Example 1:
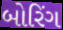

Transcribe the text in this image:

બોરિંગ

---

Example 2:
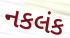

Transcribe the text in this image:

નકલંક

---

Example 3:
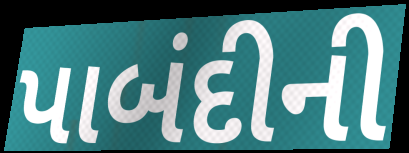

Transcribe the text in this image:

પાબંદીની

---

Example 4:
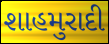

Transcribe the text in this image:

શાહમુરાદી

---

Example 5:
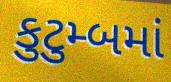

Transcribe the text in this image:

કુટુમ્બમાં